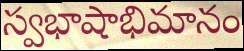
స్వభాషాభిమానం